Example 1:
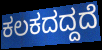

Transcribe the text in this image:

ಕಲಕದದ್ದದೆ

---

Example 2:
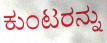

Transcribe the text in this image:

ಕುಂಟರನ್ನು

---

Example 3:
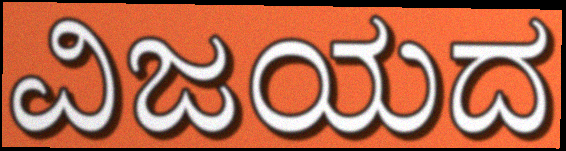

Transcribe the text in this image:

ವಿಜಯದ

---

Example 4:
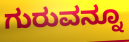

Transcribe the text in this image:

ಗುರುವನ್ನೂ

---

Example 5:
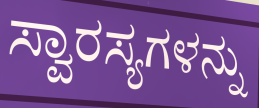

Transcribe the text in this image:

ಸ್ವಾರಸ್ಯಗಳನ್ನು